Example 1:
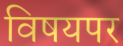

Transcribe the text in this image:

विषयपर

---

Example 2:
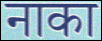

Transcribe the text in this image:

नाका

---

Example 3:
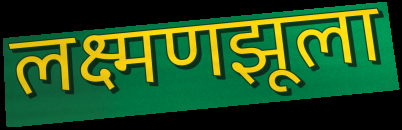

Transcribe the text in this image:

लक्ष्मणझूला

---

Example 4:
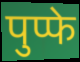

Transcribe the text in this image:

पुप्फे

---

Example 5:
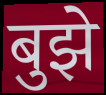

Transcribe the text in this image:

बुझे